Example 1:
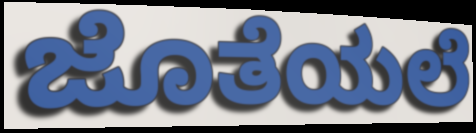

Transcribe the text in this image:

ಜೊತೆಯಲೆ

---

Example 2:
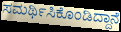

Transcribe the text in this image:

ಸಮರ್ಥಿಸಿಕೊಂಡಿದ್ದಾನೆ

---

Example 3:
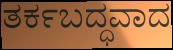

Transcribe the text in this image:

ತರ್ಕಬದ್ಧವಾದ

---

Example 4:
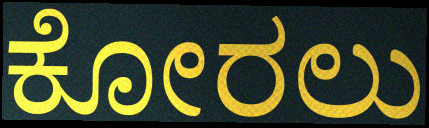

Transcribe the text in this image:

ಕೋರಲು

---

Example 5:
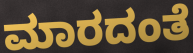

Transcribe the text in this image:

ಮಾರದಂತೆ